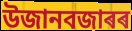
উজানবজাৰৰ